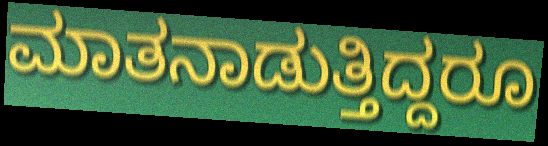
ಮಾತನಾಡುತ್ತಿದ್ದರೂ